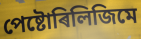
পেষ্টোৰিলিজিমে